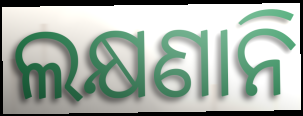
ଲକ୍ଷଣାନି